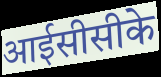
आईसीसीके